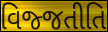
વિજ્જતીતિ